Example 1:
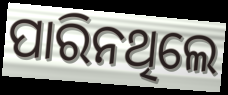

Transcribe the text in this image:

ପାରିନଥିଲେ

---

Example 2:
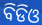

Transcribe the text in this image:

ବିଡିଓ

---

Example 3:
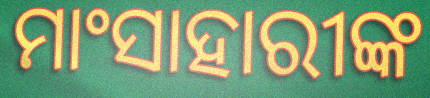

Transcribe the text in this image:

ମାଂସାହାରୀଙ୍କ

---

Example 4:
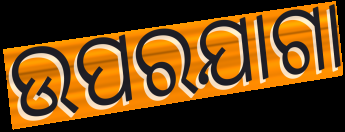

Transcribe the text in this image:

ଉପରଯାଗା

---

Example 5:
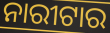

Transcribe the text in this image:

ନାରୀଟାର